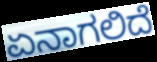
ಏನಾಗಲಿದೆ